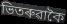
ভিতৰুৱাকৈ